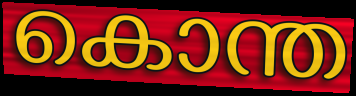
കൊന്ത